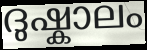
ദുഷ്കാലം